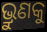
ଭ୍ରୁଣକୁ